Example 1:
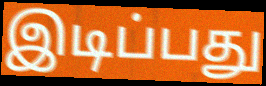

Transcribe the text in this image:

இடிப்பது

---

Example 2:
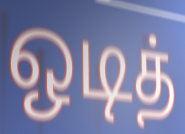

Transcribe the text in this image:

ஒடித்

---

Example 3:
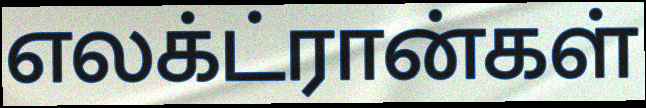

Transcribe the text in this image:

எலக்ட்ரான்கள்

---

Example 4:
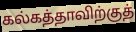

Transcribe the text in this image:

கல்கத்தாவிற்குத்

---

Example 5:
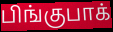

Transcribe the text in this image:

பிங்குபாக்